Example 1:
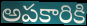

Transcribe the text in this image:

అపకారికి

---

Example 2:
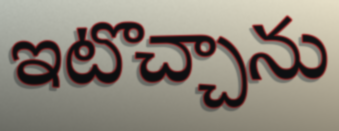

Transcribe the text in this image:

ఇటొచ్చాను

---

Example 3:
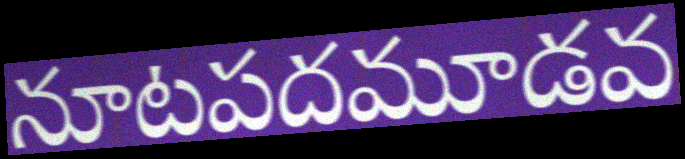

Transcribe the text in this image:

నూటపదమూడవ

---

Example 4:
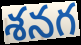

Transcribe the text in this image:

శనగ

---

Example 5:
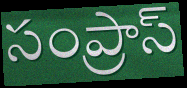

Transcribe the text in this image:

సంప్రాస్